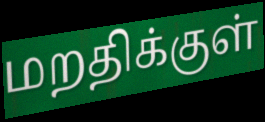
மறதிக்குள்